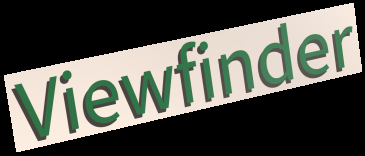
Viewfinder